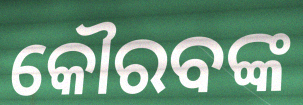
କୌରବଙ୍କ